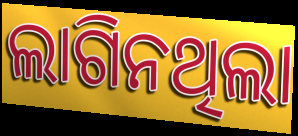
ଲାଗିନଥିଲା